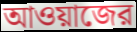
আওয়াজের